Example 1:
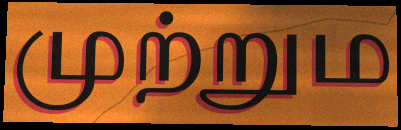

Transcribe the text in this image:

முற்றும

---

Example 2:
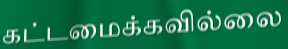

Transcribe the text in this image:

கட்டமைக்கவில்லை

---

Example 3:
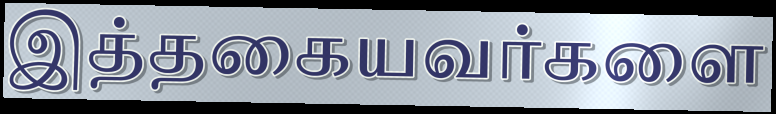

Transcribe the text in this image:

இத்தகையவர்களை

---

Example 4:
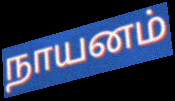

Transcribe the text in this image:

நாயனம்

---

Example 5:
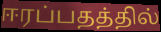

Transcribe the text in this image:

ஈரப்பதத்தில்